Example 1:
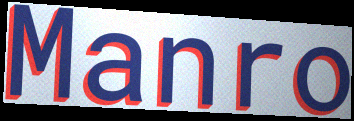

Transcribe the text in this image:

Manro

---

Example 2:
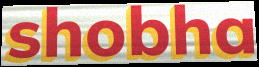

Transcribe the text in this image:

shobha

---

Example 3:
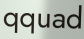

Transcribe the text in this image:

qquad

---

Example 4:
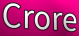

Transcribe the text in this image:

Crore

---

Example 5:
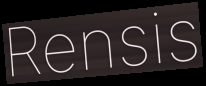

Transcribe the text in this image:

Rensis